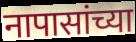
नापासांच्या